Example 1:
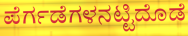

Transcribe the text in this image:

ಪೆರ್ಗಡೆಗಳನಟ್ಟಿದೊಡೆ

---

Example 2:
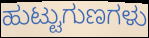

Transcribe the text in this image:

ಹುಟ್ಟುಗುಣಗಳು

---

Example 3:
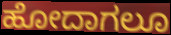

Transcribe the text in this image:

ಹೋದಾಗಲೂ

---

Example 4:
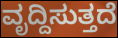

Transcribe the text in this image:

ವೃದ್ದಿಸುತ್ತದೆ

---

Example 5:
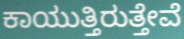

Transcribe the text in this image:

ಕಾಯುತ್ತಿರುತ್ತೇವೆ